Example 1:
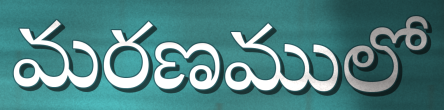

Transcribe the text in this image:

మరణములో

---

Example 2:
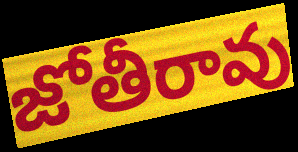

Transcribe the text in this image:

జోతీరావు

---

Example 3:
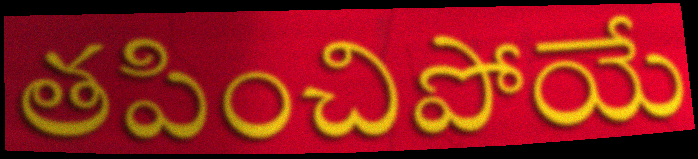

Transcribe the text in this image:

తపించిపోయే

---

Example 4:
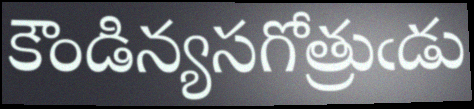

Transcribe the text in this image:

కౌండిన్యసగోత్రుఁడు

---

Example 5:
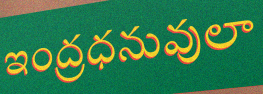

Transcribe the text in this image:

ఇంద్రధనువులా